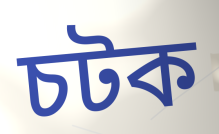
চটক